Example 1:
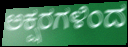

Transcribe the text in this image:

ಅಕ್ಷರಗಳಿಂದ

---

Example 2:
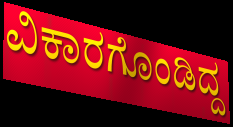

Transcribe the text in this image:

ವಿಕಾರಗೊಂಡಿದ್ದ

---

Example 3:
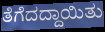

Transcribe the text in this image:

ತೆಗೆದದ್ದಾಯಿತು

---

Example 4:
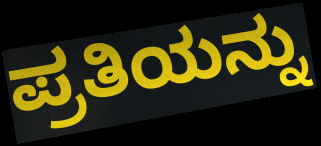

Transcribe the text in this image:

ಪ್ರತಿಯನ್ನು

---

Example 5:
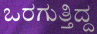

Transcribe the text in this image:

ಒರಗುತ್ತಿದ್ದ